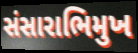
સંસારાભિમુખ